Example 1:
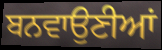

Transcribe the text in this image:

ਬਨਵਾਉਣੀਆਂ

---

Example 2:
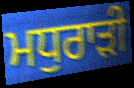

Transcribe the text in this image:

ਮਧੁਰਾੜੀ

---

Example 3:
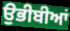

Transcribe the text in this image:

ਉਭੀਬੀਆਂ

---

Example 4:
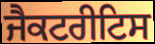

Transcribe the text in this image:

ਜੈਕਟਰੀਟਿਸ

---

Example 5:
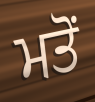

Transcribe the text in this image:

ਮਤੋਂ